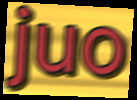
juo